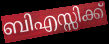
ബിഎസ്സിക്ക്